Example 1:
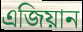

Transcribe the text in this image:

এজিয়ান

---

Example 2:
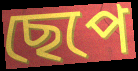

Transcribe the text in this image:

ছেপে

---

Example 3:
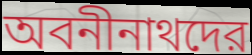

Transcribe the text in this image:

অবনীনাথদের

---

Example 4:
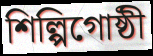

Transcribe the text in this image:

শিল্পিগোষ্ঠী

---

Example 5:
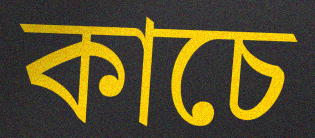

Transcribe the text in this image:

কাচে